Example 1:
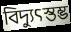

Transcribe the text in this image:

বিদ্যুৎস্তম্ভ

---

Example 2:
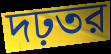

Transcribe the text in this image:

দঢ়তর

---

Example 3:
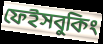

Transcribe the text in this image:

ফেইসবুকিং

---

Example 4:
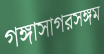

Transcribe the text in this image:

গঙ্গাসাগরসঙ্গম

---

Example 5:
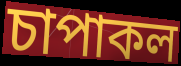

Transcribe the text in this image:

চাপাকল